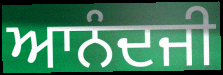
ਆਨੰਦਜੀ